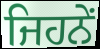
ਜਿਹਨੇਂ